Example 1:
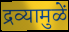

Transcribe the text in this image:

द्रव्यामुळें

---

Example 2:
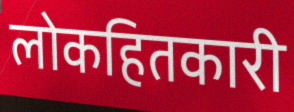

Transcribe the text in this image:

लोकहितकारी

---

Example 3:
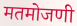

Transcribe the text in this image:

मतमोजणी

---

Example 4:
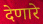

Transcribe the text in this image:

देणारे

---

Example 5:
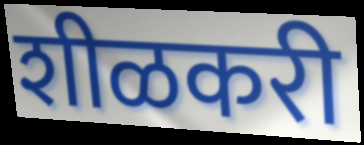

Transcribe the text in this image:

शीळकरी